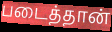
படைத்தான்